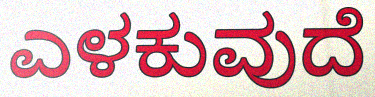
ಎಳಕುವುದೆ